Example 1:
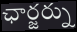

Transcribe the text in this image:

ఛార్జర్ను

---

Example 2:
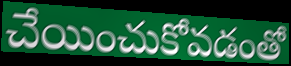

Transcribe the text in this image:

చేయించుకోవడంతో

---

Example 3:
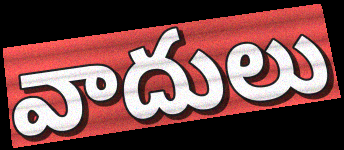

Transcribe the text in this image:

వాదులు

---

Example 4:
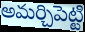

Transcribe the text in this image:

అమర్చిపెట్టి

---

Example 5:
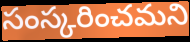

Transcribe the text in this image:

సంస్కరించమని